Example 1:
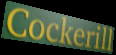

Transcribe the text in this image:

Cockerill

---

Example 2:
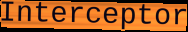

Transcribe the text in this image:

Interceptor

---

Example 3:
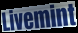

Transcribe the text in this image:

Livemint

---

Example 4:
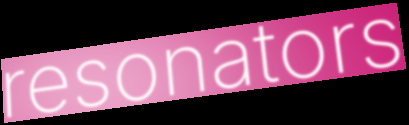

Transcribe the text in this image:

resonators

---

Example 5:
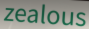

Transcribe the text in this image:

zealous